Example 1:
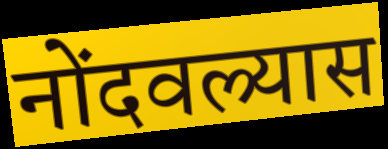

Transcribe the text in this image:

नोंदवल्यास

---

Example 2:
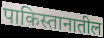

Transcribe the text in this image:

पाकिस्‍तानातील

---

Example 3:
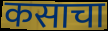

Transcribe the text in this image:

कसाचा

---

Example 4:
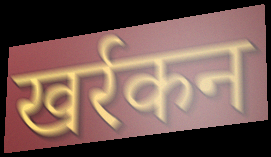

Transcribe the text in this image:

खर्रकन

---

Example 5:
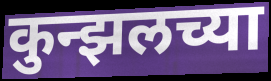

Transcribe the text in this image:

कुन्झलच्या